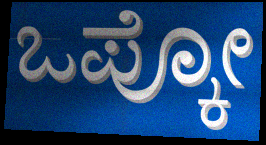
ಒಪ್ಕೋ